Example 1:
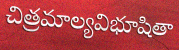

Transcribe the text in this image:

చిత్రమాల్యవిభూషితా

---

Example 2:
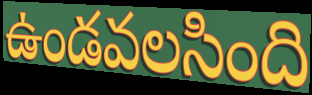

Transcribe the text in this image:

ఉండవలసింది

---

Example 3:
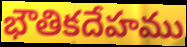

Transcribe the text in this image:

భౌతికదేహము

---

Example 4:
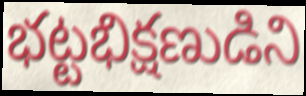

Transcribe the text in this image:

భట్టభిక్షణుడిని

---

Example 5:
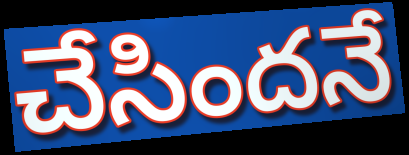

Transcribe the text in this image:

చేసిందనే